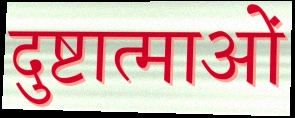
दुष्टात्माओं